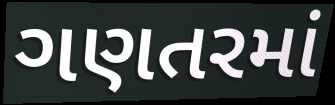
ગણતરમાં